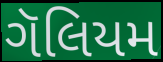
ગૅલિયમ